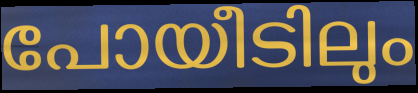
പോയീടിലും